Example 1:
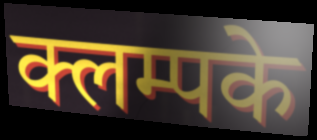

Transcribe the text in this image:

क्लम्पके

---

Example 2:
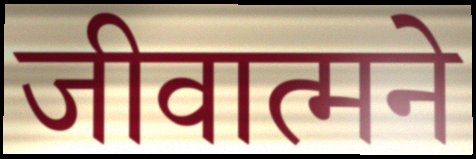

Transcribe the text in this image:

जीवात्मने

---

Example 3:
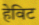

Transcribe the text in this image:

हेविट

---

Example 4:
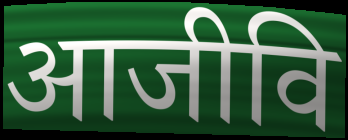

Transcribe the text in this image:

आजीवि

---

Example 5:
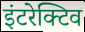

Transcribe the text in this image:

इंटरेक्टिव